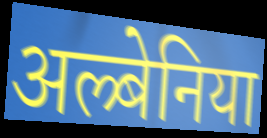
अल्बेनिया